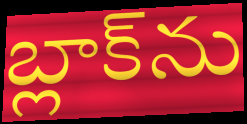
బ్లాక్‌ను